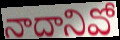
నాదానివో